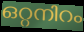
ഒറ്റനിറം